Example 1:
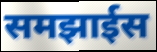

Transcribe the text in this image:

समझाईस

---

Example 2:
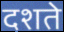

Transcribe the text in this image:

दशते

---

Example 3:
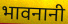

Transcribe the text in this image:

भावनानी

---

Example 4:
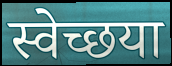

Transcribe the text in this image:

स्वेच्छया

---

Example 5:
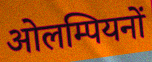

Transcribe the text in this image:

ओलम्पियनों